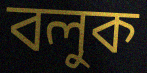
বলুক